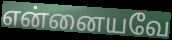
என்னையவே